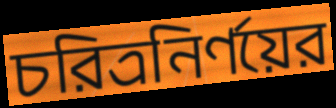
চরিত্রনির্ণয়ের